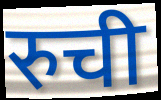
रुची